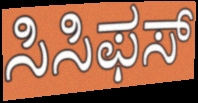
ಸಿಸಿಫಸ್